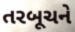
તરબૂચને